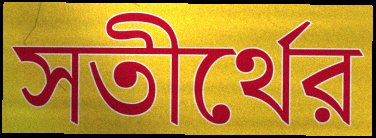
সতীর্থের